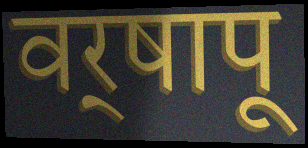
वर्षापू